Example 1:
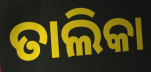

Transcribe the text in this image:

ତାଲିକା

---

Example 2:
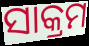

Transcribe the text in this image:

ସାକ୍ରମ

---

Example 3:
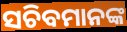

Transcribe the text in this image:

ସଚିବମାନଙ୍କ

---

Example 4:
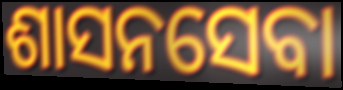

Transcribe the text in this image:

ଶାସନସେବା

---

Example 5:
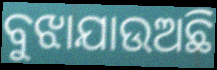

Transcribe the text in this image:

ବୁଝାଯାଉଅଛି